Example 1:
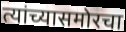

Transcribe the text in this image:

त्यांच्यासमोरचा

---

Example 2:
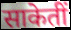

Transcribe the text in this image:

साकेतीं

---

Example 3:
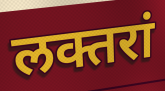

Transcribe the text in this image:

लक्तरां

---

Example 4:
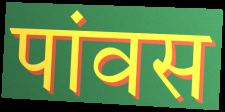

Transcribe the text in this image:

पांवस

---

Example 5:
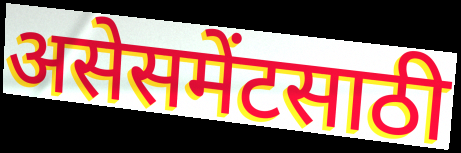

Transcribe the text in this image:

असेसमेंटसाठी